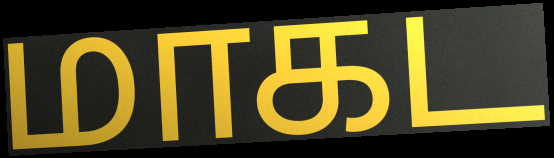
மாகட